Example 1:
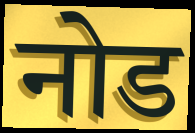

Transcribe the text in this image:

नोड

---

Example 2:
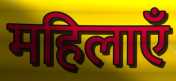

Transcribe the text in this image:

महिलाएँ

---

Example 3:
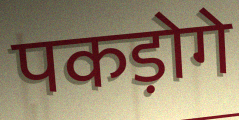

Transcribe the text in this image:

पकड़ोगे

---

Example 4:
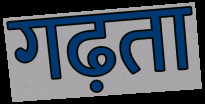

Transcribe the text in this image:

गढ़ता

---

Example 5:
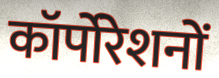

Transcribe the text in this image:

कॉर्पोरेशनों